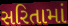
સરિતામાં